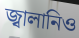
জ্বালানিও